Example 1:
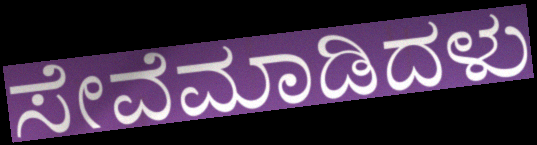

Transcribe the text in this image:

ಸೇವೆಮಾಡಿದಳು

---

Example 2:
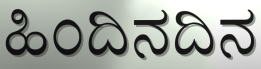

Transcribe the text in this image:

ಹಿಂದಿನದಿನ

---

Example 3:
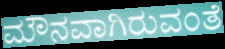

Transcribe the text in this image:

ಮೌನವಾಗಿರುವಂತೆ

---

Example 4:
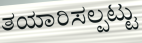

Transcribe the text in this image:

ತಯಾರಿಸಲ್ಪಟ್ಟು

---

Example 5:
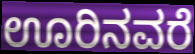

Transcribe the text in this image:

ಊರಿನವರೆ